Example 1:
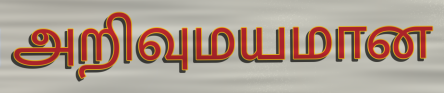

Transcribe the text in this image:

அறிவுமயமான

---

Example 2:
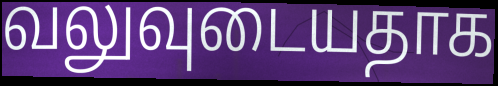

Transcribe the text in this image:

வலுவுடையதாக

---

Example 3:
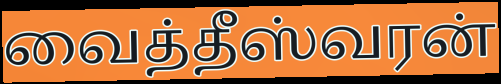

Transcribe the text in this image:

வைத்தீஸ்வரன்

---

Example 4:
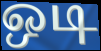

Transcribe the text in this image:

ஒடி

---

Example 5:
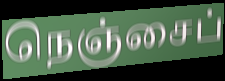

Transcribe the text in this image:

நெஞ்சைப்